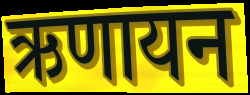
ऋणायन